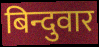
बिन्‍दुवार